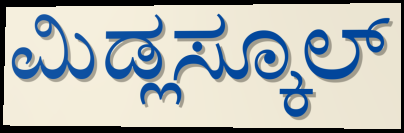
ಮಿಡ್ಲಸ್ಕೂಲ್